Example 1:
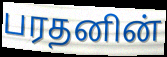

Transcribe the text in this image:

பரதனின்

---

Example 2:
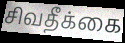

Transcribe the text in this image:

சிவதீக்கை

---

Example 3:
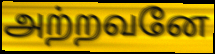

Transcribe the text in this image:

அற்றவனே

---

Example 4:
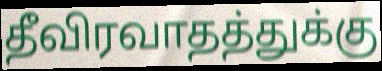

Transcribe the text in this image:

தீவிரவாதத்துக்கு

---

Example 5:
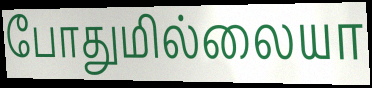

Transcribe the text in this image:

போதுமில்லையா